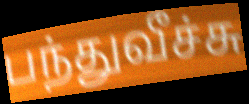
பந்துவீச்சு